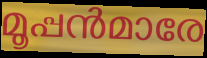
മൂപ്പൻമാരേ